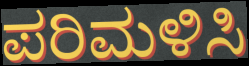
ಪರಿಮಳಿಸಿ